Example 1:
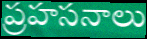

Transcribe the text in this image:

ప్రహసనాలు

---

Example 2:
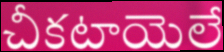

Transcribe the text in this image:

చీకటాయెలే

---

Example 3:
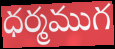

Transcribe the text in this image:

ధర్మముగ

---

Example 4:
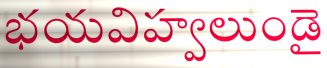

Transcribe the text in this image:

భయవిహ్వలుండై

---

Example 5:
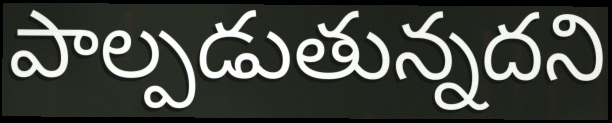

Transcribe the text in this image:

పాల్పడుతున్నదని